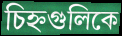
চিহ্নগুলিকে